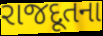
રાજદૂતના